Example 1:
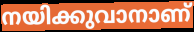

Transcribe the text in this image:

നയിക്കുവാനാണ്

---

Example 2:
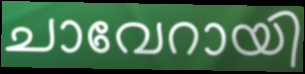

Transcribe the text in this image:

ചാവേറായി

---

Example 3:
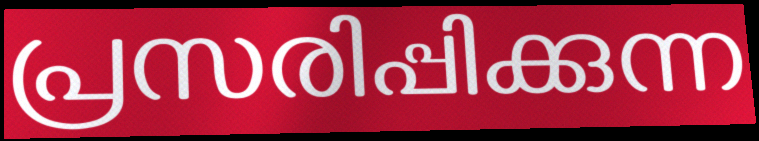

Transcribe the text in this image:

പ്രസരിപ്പിക്കുന്ന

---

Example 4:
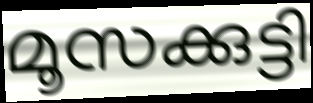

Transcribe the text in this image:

മൂസക്കുട്ടി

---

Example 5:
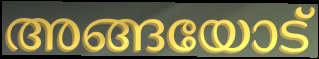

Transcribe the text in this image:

അങ്ങയോട്